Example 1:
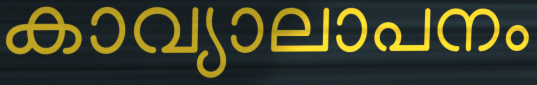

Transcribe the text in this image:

കാവ്യാലാപനം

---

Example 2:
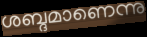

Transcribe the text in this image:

ശബ്ദമാണെന്നു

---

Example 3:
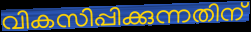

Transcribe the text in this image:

വികസിപ്പിക്കുന്നതിന്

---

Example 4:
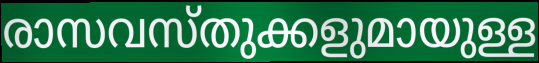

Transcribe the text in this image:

രാസവസ്തുക്കളുമായുള്ള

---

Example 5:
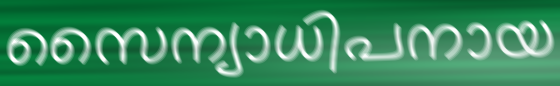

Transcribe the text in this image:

സൈന്യാധിപനായ